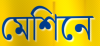
মেশিনে